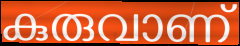
കുരുവാണ്